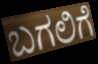
ಬಗಲಿಗೆ